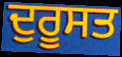
ਦੁਰੂਸਤ